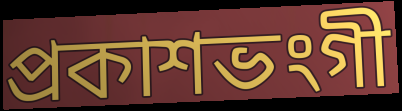
প্ৰকাশভংগী